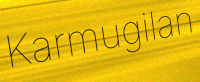
Karmugilan